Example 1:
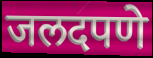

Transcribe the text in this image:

जलदपणे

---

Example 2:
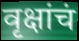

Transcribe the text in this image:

वृक्षांचं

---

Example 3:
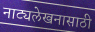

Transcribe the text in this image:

नाट्यलेखनासाठी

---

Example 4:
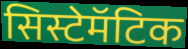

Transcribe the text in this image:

सिस्टेमॅटिक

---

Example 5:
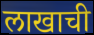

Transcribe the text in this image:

लाखाची